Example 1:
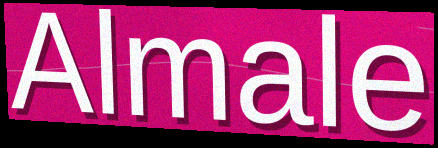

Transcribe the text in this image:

Almale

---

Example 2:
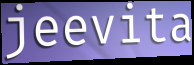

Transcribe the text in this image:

jeevita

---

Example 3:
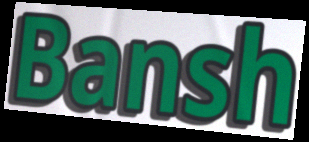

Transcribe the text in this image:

Bansh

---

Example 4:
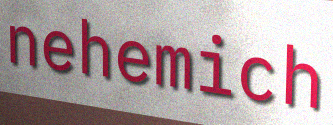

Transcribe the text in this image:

nehemich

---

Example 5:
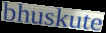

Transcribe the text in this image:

bhuskute